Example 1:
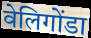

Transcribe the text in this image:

वेलिगोंडा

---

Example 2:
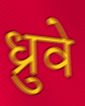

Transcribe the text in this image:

ध्रुवे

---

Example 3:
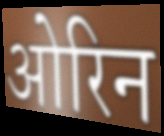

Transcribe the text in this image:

ओरिन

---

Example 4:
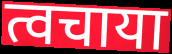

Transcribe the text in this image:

त्वचाया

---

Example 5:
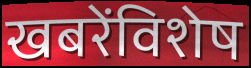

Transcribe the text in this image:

खबरेंविशेष